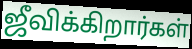
ஜீவிக்கிறார்கள்